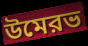
উমেরভ